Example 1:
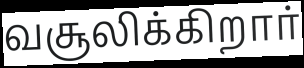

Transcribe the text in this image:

வசூலிக்கிறார்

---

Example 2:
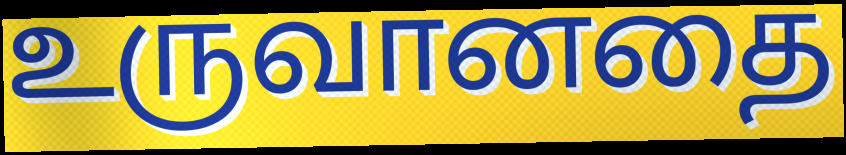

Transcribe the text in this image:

உருவானதை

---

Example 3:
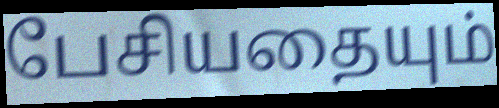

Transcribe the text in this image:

பேசியதையும்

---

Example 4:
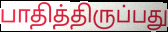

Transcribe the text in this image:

பாதித்திருப்பது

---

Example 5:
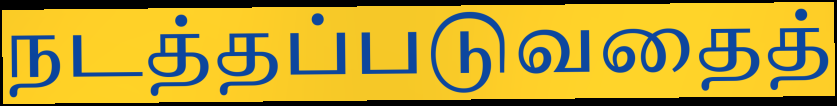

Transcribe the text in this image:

நடத்தப்படுவதைத்